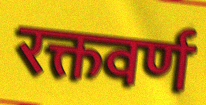
रक्तवर्ण